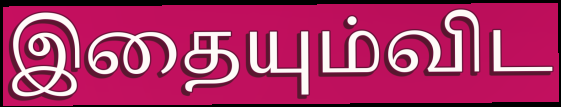
இதையும்விட